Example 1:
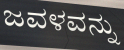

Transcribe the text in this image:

ಜವಳವನ್ನು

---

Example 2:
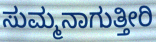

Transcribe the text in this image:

ಸುಮ್ಮನಾಗುತ್ತೀರಿ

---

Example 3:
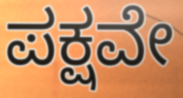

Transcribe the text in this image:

ಪಕ್ಷವೇ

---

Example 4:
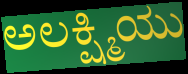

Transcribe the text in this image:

ಅಲಕ್ಷ್ಮಿಯು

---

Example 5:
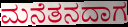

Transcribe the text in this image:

ಮನೆತನದಾಗ